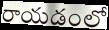
రాయడంలో